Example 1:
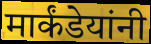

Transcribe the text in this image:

मार्कंडेयांनी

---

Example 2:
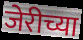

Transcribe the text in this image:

जेरीच्या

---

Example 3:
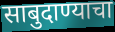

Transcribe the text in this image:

साबुदाण्याचा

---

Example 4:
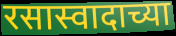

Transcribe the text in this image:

रसास्वादाच्या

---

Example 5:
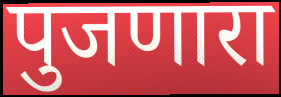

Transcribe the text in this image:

पुजणारा